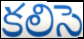
కలిసె